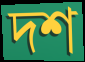
দশ